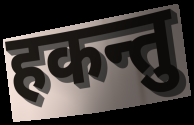
हकन्तु